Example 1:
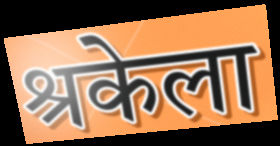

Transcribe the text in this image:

श्रकेला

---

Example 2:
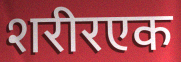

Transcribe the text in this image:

शरीरएक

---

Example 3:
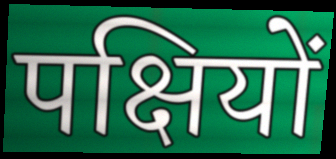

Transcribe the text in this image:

पक्षियों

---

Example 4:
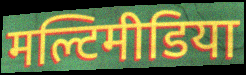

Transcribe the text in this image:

मल्टिमीडिया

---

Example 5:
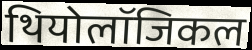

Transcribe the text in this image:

थियोलॉजिकल